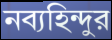
নব্যহিন্দুর